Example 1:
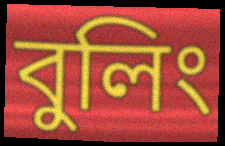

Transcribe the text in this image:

বুলিং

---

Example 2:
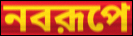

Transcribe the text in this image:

নবরূপে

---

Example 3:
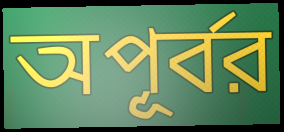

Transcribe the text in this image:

অপূর্বর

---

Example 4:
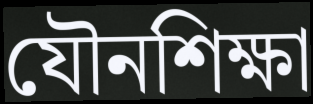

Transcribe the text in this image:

যৌনশিক্ষা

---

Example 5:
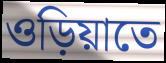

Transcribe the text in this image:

ওড়িয়াতে